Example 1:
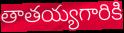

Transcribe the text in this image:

తాతయ్యగారికి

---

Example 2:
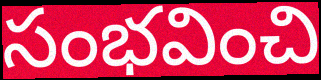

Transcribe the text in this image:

సంభవించి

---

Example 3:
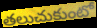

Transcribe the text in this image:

తలుచుకుంటో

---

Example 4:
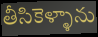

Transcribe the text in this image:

తీసికెళ్ళాను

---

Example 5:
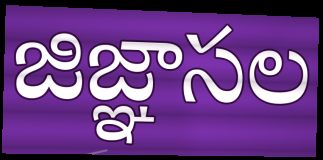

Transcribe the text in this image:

జిజ్ఞాసల